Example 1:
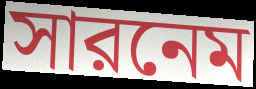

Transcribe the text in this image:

সারনেম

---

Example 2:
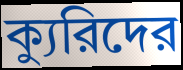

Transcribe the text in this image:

ক্যুরিদের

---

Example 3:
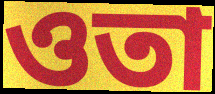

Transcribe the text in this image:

ওতা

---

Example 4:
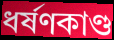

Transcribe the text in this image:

ধর্ষণকাণ্ড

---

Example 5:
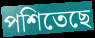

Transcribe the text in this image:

পশিতেছে